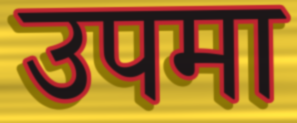
उपमा